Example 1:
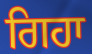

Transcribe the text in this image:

ਗਿਹਾ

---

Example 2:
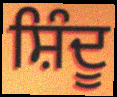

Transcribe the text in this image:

ਸ਼ਿੰਦੂ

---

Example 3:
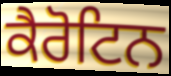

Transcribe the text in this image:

ਕੈਰੋਟਿਨ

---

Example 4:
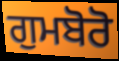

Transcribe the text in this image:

ਗੁਮਬੋਰੋ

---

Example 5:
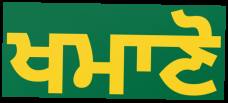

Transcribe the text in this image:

ਖਮਾਣੋ